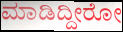
ಮಾಡಿದ್ದೀರೋ